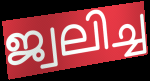
ജ്വലിച്ച